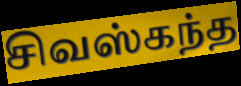
சிவஸ்கந்த